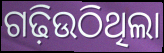
ଗଢ଼ିଉଠିଥିଲା